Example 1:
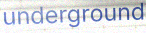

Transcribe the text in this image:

underground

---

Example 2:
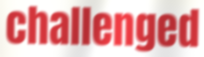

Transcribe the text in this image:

challenged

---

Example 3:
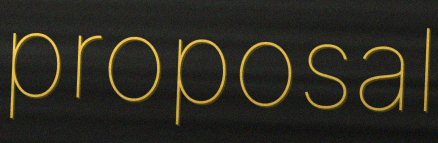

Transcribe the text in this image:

proposal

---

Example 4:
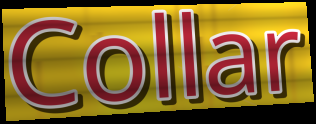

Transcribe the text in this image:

Collar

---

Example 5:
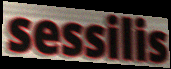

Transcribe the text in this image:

sessilis